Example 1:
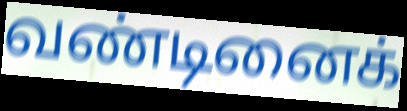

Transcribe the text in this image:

வண்டினைக்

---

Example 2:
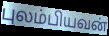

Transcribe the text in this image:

புலம்பியவன்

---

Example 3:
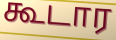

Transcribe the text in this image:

கூடார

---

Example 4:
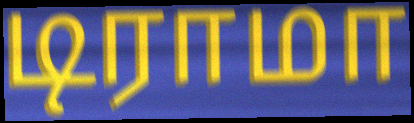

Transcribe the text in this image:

டிராமா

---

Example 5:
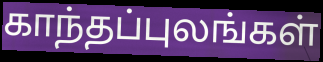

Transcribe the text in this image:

காந்தப்புலங்கள்